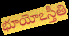
భూయోఽస్తీతి